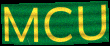
MCU